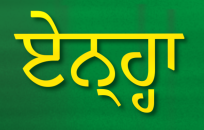
ਏਨ੍ਹ੍ਹਾ